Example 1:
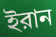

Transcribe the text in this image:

ইরান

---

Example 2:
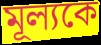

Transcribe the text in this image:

মূল্যকে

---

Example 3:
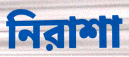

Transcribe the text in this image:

নিরাশা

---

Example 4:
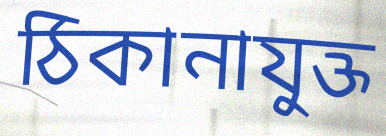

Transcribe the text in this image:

ঠিকানাযুক্ত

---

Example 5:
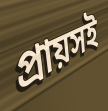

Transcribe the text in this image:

প্রায়সই